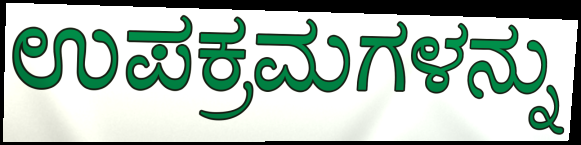
ಉಪಕ್ರಮಗಳನ್ನು